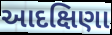
આદક્ષિણા